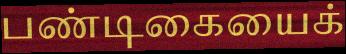
பண்டிகையைக்